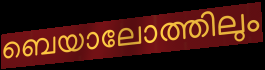
ബെയാലോത്തിലും